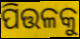
ପିତ୍ତଳକୁ